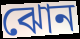
ঝোন